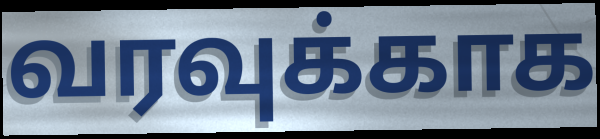
வரவுக்காக